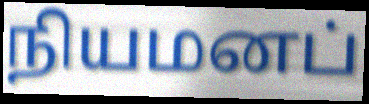
நியமனப்